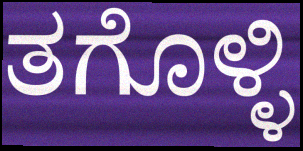
ತಗೊಳ್ಳಿ